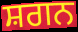
ਸ਼ਗਨ